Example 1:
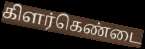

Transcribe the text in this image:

கிளர்கெண்டை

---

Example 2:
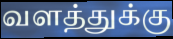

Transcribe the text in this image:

வளத்துக்கு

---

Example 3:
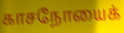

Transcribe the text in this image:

காசநோயைக்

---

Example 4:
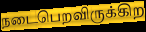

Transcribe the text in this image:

நடைபெறவிருக்கிற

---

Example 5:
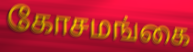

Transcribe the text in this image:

கோசமங்கை